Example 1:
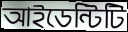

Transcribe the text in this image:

আইডেন্টিটি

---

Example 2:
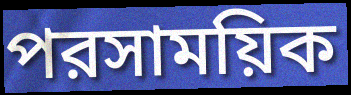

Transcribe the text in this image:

পরসাময়িক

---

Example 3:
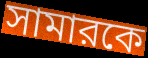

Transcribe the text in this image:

সামারকে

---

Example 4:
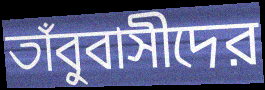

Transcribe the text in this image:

তাঁবুবাসীদের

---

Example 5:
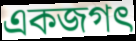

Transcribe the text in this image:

একজগৎ